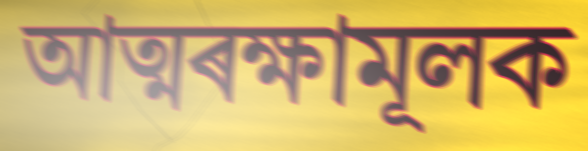
আত্মৰক্ষামূলক